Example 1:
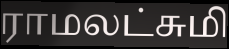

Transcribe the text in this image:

ராமலட்சுமி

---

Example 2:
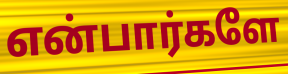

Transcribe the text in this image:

என்பார்களே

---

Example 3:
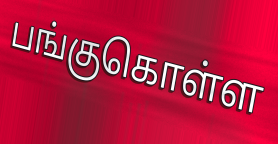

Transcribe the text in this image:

பங்குகொள்ள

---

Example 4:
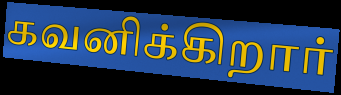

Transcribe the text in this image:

கவனிக்கிறார்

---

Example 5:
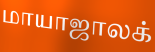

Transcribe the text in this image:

மாயாஜாலக்